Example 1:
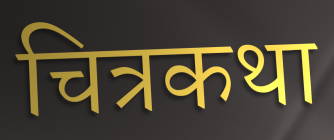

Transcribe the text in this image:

चित्रकथा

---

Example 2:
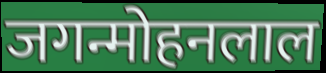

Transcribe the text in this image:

जगन्मोहनलाल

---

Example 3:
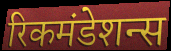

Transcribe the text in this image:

रिकमंडेशन्स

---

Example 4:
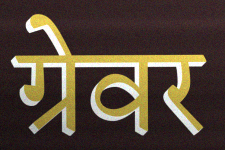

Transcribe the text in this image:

ग्रेवर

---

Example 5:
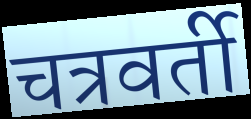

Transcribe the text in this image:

चत्रवर्ती